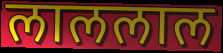
लाललाल